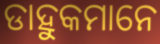
ଡାହୁକମାନେ